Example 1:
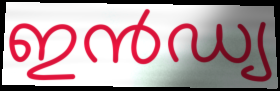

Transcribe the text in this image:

ഇൻഡ്യ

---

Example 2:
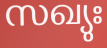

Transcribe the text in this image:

സഖ്യുഃ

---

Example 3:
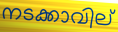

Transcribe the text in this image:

നടക്കാവില്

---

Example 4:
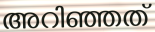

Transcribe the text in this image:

അറിഞ്ഞത്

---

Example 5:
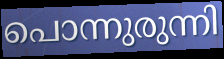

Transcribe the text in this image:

പൊന്നുരുന്നി